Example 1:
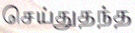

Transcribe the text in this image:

செய்துதந்த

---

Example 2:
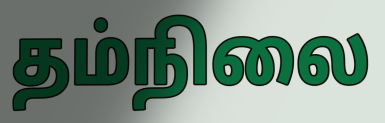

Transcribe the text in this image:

தம்நிலை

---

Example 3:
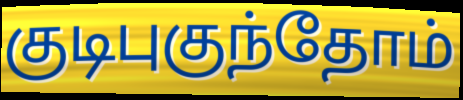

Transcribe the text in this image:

குடிபுகுந்தோம்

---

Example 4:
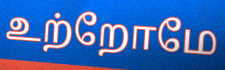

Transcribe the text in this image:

உற்றோமே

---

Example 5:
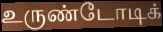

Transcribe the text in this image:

உருண்டோடிக்